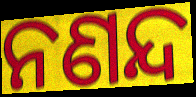
ନଣନ୍ଦ